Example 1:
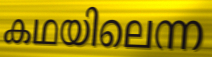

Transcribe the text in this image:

കഥയിലെന്ന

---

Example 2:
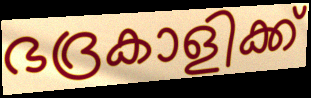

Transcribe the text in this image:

ഭദ്രകാളിക്ക്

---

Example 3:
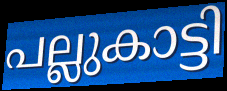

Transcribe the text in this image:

പല്ലുകാട്ടി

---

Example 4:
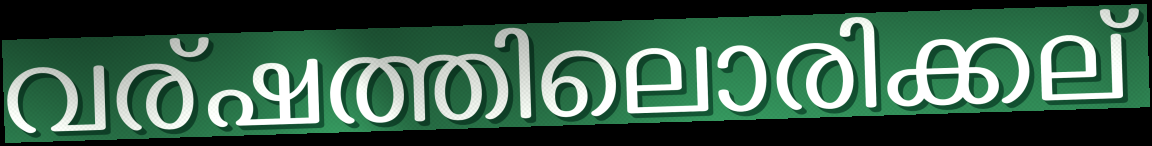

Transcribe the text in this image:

വര്ഷത്തിലൊരിക്കല്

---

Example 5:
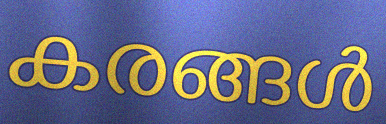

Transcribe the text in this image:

കരങ്ങൾ